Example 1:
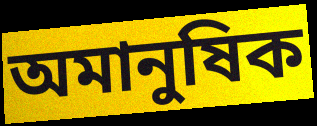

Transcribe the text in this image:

অমানুষিক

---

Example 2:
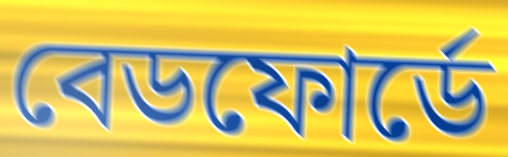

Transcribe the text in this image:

বেডফোর্ডে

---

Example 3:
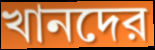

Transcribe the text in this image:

খানদের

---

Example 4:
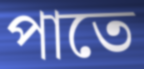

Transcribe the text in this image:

পাতে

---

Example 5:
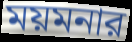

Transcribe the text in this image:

ময়মনার